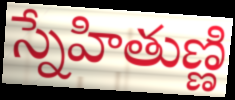
స్నేహితుణ్ణి